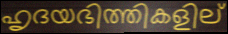
ഹൃദയഭിത്തികളില്